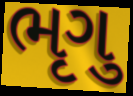
ભૃગુ